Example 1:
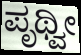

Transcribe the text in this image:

ಪೃಥ್ವೀ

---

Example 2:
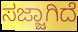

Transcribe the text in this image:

ಸಜ್ಜಾಗಿದೆ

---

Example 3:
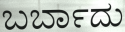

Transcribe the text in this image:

ಬರ್ಬಾದು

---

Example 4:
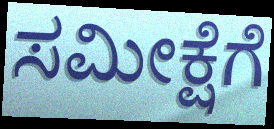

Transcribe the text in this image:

ಸಮೀಕ್ಷೆಗೆ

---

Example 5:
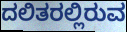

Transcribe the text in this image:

ದಲಿತರಲ್ಲಿರುವ